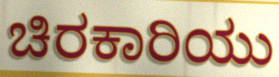
ಚಿರಕಾರಿಯು